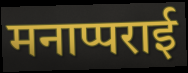
मनाप्पराई